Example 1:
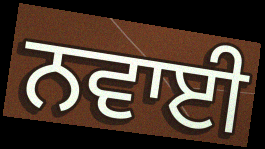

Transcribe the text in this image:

ਨਵਾਈ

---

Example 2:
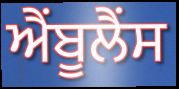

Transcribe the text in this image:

ਐੰਬੂਲੈਂਸ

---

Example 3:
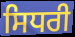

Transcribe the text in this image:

ਸਿਧਰੀ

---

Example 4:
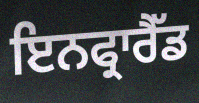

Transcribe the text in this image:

ਇਨਫ੍ਰਾਰੈੱਡ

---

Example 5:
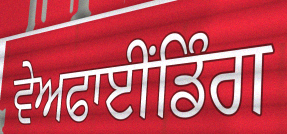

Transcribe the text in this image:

ਵੇਅਫਾਈਂਡਿੰਗ